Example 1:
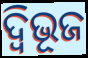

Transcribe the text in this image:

ଦ୍ବିଭୂଜ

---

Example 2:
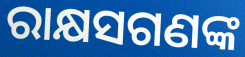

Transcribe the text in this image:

ରାକ୍ଷସଗଣଙ୍କ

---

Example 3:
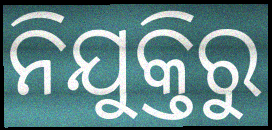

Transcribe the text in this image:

ନିଯୁକ୍ତିରୁ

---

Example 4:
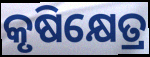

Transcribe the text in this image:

କୃଷିକ୍ଷେତ୍ର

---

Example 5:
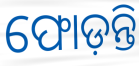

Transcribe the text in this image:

ଫୋଡ଼ନ୍ତି